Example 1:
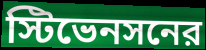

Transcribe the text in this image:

স্টিভেনসনের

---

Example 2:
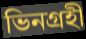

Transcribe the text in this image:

ভিনগ্রহী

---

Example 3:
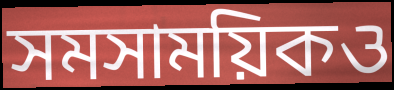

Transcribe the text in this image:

সমসাময়িকও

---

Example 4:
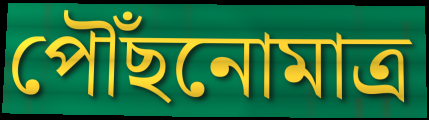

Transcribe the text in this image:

পৌঁছনোমাত্র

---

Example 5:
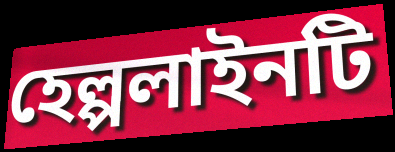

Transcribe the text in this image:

হেল্পলাইনটি